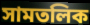
সামতলিক